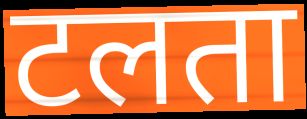
टलता